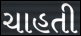
ચાહતી